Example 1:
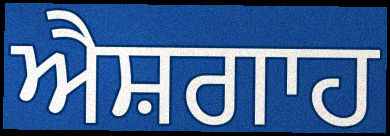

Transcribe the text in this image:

ਐਸ਼ਗਾਹ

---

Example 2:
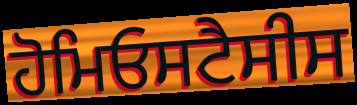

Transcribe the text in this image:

ਹੋਮਿਓਸਟੈਸੀਸ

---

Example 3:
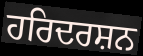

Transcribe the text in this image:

ਹਰਿਦਰਸ਼ਨ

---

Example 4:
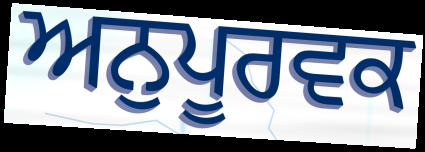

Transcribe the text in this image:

ਅਨੁਪੂਰਵਕ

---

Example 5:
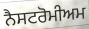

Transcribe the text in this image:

ਨੈਸਟਰੋਮੀਅਮ